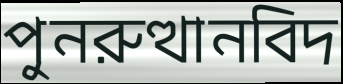
পুনরুত্থানবিদ